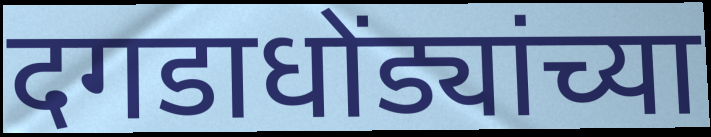
दगडाधोंड्यांच्या